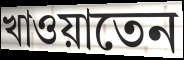
খাওয়াতেন